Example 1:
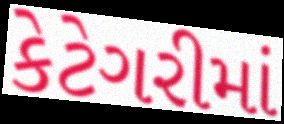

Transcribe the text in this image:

કેટેગરીમાં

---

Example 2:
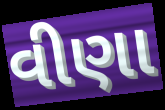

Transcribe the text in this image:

વીણા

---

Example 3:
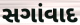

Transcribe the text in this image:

સગાંવાદ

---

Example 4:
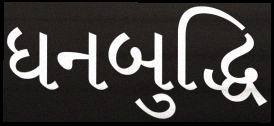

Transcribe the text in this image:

ધનબુદ્ધિ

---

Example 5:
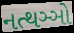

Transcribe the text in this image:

નત્થઞ્ઞો